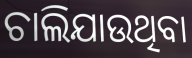
ଚାଲିଯାଉଥିବା